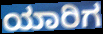
ಯಾರಿಗ